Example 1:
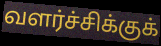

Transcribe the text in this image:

வளர்ச்சிக்குக்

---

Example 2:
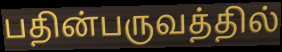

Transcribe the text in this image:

பதின்பருவத்தில்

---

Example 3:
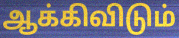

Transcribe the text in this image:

ஆக்கிவிடும்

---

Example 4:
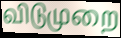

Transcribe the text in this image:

விடுமுறை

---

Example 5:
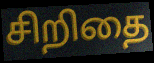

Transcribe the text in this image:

சிறிதை